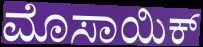
ಮೊಸಾಯಿಕ್